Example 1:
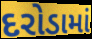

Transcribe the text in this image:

દરોડામાં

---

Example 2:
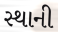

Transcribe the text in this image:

સ્થાની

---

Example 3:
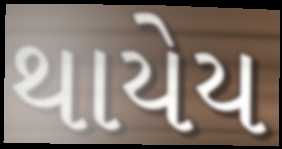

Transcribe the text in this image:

થાયેય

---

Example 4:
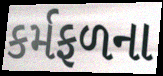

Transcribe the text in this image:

કર્મફળના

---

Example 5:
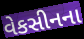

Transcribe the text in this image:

વેકસીનના